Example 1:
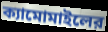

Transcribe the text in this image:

ক্যামোমাইলের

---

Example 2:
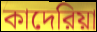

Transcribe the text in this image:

কাদেরিয়া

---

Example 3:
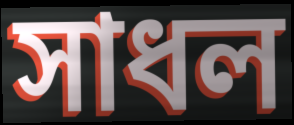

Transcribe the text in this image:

সাধল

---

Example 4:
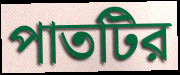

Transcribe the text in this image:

পাতটির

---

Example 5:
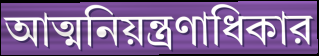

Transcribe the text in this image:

আত্মনিয়ন্ত্রণাধিকার